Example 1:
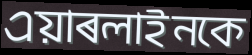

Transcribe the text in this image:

এয়াৰলাইনকে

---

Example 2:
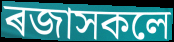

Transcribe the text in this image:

ৰজাসকলে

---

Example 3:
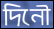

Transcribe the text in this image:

দিনৌ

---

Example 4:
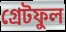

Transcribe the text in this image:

গ্ৰেটফুল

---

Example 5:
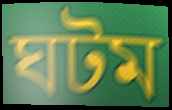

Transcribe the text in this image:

ঘটম